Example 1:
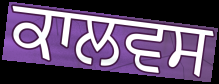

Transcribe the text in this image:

ਕਾਲਵਸ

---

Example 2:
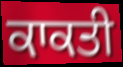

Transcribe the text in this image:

ਕਾਕਤੀ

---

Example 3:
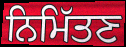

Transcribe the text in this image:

ਨਿਮਿੱਤਣ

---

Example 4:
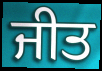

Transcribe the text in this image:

ਜੀਤ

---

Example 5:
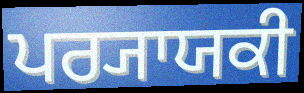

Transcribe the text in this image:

ਪਰ੍ਯਾਯਕੀ